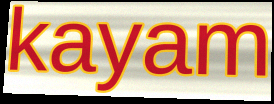
kayam